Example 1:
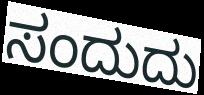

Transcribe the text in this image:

ಸಂದುದು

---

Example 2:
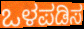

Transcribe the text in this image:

ಒಳಪಡಿಸ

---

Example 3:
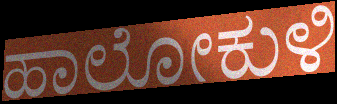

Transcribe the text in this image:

ಹಾಲೋಕುಳಿ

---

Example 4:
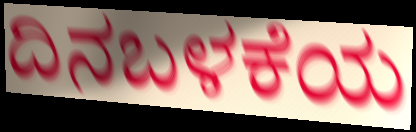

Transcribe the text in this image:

ದಿನಬಳಕೆಯ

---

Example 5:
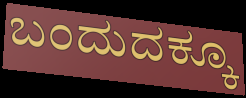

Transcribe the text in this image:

ಬಂದುದಕ್ಕೂ